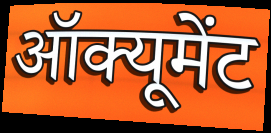
ऑक्यूमेंट